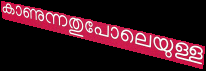
കാണുന്നതുപോലെയുള്ള